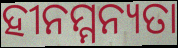
ହୀନମ୍ମନ୍ୟତା